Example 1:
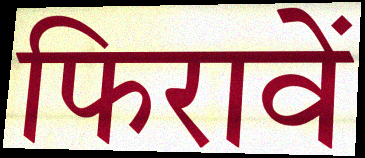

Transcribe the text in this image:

फिरावें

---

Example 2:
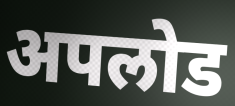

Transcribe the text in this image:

अपलोड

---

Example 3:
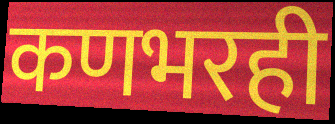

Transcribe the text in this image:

कणभरही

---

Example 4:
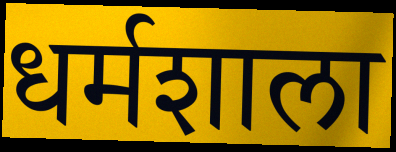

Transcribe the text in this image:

धर्मशाला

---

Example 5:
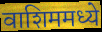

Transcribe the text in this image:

वाशिममध्ये